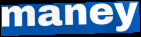
maney